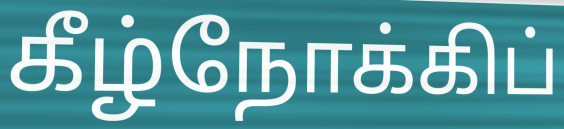
கீழ்நோக்கிப்